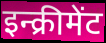
इन्क्रीमेंट